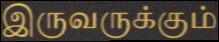
இருவருக்கும்